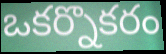
ఒకర్నొకరం